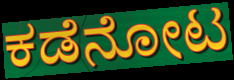
ಕಡೆನೋಟ